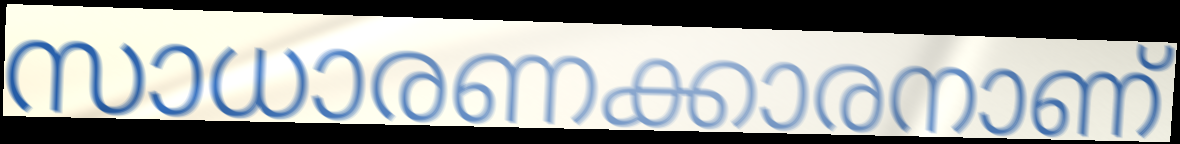
സാധാരണക്കാരനാണ്